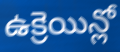
ఉక్రెయిన్లో